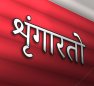
शृंगारतो